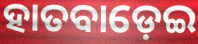
ହାତବାଡ଼େଇ